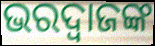
ଭରଦ୍ବାଜଙ୍କ